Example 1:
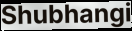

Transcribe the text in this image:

Shubhangi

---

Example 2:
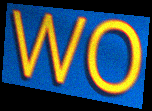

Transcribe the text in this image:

WO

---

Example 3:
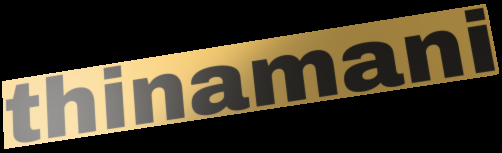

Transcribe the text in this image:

thinamani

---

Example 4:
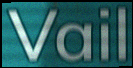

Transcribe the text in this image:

Vail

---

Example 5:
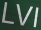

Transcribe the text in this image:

LVI